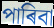
পাৰিবা